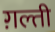
ग़ल्ती